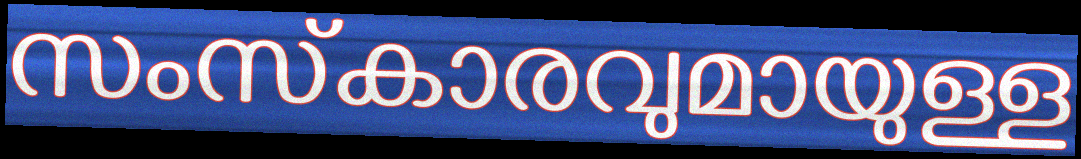
സംസ്‌കാരവുമായുള്ള